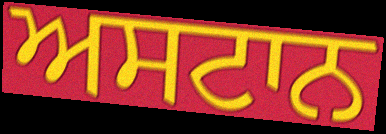
ਅਸਟਾਨ